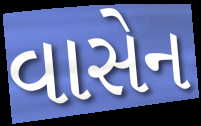
વાસેન